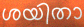
ശയിതാ